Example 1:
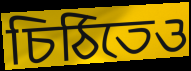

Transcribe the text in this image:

চিঠিতেও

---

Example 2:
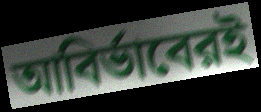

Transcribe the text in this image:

আবির্ভাবেরই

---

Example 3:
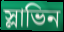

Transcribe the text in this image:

স্লাভিন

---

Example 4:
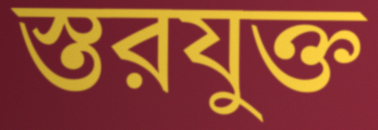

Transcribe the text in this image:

স্তরযুক্ত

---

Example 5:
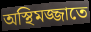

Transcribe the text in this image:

অস্থিমজ্জাতে